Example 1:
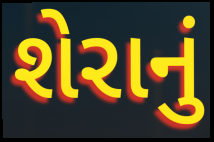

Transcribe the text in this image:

શેરાનું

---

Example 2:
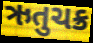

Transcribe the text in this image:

ઋતુચક્ર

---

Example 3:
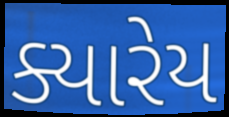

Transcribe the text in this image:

ક્યારેય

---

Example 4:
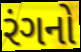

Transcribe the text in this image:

રંગનો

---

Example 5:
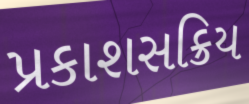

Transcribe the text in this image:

પ્રકાશસક્રિય